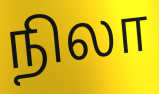
நிலா